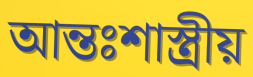
আন্তঃশাস্ত্রীয়